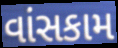
વાંસકામ